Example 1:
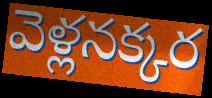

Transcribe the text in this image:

వెళ్లనక్కర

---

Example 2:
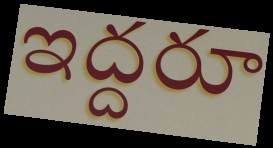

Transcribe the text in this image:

ఇద్దరూ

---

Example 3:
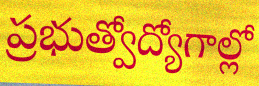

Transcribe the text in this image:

ప్రభుత్వోద్యోగాల్లో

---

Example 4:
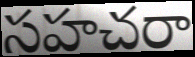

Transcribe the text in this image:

సహచరా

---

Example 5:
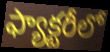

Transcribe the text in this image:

ఫ్యాక్టరీలో